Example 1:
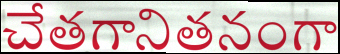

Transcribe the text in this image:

చేతగానితనంగా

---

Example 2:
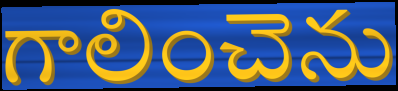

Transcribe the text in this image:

గాలించెను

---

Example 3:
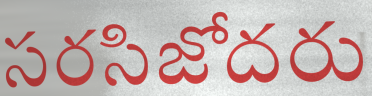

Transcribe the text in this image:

సరసిజోదరు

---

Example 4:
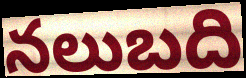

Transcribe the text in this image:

నలుబది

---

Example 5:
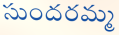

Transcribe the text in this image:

సుందరమ్మ